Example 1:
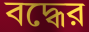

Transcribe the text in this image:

বদ্ধের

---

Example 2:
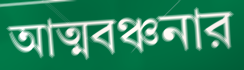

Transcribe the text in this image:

আত্মবঞ্চনার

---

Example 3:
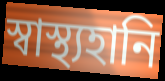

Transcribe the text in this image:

স্বাস্থ্যহানি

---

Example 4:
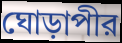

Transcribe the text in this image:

ঘোড়াপীর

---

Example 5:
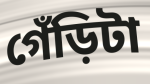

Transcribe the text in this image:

গেঁড়িটা